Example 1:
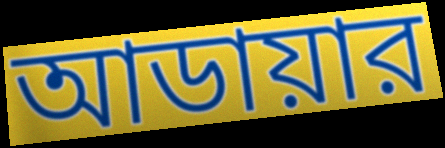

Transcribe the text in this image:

আডায়ার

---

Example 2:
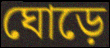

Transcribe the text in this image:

ঘোড়ে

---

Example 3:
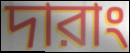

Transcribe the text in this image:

দারাং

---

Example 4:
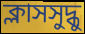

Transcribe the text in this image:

ক্লাসসুদ্ধু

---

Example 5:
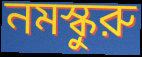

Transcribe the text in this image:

নমস্কুরু